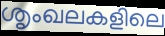
ശൃംഖലകളിലെ